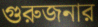
গুরুজনার